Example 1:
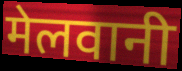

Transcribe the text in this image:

मेलवानी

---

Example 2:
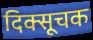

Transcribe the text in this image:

दिक्सूचक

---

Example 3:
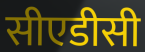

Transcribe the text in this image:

सीएडीसी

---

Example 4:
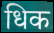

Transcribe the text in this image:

धिक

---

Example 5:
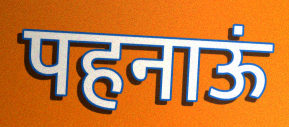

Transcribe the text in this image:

पहनाऊं